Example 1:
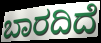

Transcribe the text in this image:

ಬಾರದಿದೆ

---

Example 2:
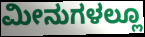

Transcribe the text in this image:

ಮೀನುಗಳಲ್ಲೂ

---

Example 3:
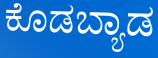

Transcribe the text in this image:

ಕೊಡಬ್ಯಾಡ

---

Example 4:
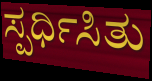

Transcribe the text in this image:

ಸ್ಪರ್ಧಿಸಿತು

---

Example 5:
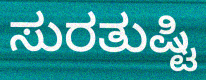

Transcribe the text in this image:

ಸುರತುಷ್ಟಿ